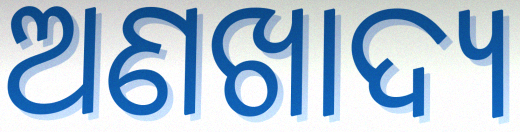
ଅଣଖାଦ୍ୟ